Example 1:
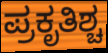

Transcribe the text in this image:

ಪ್ರಕೃತಿಶ್ಚ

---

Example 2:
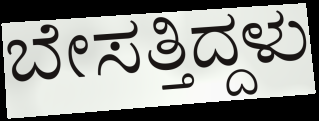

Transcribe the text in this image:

ಬೇಸತ್ತಿದ್ದಳು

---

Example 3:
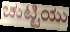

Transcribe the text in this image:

ಚುಟ್ಟಿಯು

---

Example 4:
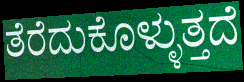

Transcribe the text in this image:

ತೆರೆದುಕೊಳ್ಳುತ್ತದೆ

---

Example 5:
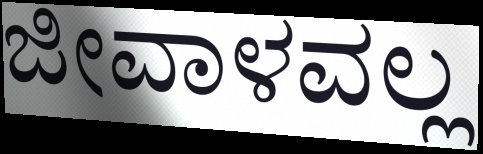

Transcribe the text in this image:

ಜೀವಾಳವಲ್ಲ